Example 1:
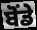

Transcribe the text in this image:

ਬੋਂਡੇ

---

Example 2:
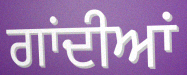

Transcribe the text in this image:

ਗਾਂਦੀਆਂ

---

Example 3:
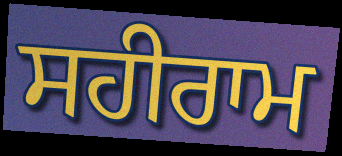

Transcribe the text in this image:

ਸਹੀਰਾਮ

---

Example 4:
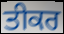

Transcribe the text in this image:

ਤੀਕਰ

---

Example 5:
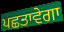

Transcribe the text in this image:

ਪਛਤਾਵੇਗਾ